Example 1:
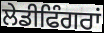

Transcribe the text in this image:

ਲੇਡੀਫਿੰਗਰਾਂ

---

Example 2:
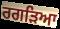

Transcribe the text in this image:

ਰਗੜਿਆ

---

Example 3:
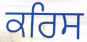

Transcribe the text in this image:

ਕਰਿਸ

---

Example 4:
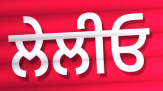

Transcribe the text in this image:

ਲੇਲੀਓ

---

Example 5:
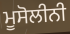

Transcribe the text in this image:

ਮੂਸੋਲੀਨੀ